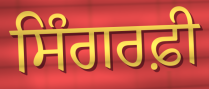
ਸਿੰਗਰਫ਼ੀ